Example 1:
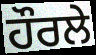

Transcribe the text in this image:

ਹੌਰਲੇ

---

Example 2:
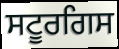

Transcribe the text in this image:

ਸਟੂਰਗਿਸ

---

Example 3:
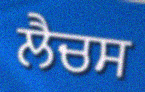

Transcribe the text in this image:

ਲੈਚਸ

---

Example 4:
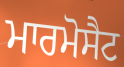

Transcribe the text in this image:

ਮਾਰਮੋਸੈਟ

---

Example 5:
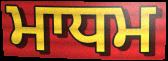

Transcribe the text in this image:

ਮਾਧਮ